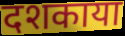
दशकाया